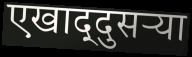
एखाद्‌दुसऱ्या